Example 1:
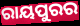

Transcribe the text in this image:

ରାୟପୁରର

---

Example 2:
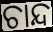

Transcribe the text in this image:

ଚାନ୍ଦ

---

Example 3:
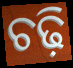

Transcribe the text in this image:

ଚଢ଼ି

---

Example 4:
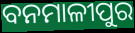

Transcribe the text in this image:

ବନମାଳୀପୁର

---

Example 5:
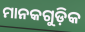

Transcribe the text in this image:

ମାନକଗୁଡ଼ିକ